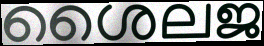
ശൈലജ